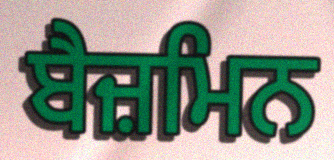
ਬੈਜ਼ਮਿਨ